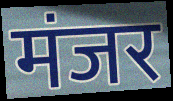
मंजर